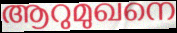
ആറുമുഖനെ